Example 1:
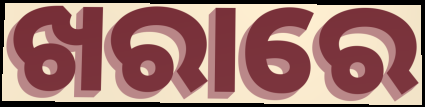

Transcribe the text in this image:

ଖରାରେ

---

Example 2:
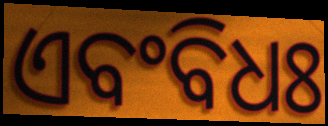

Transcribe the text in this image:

ଏବଂବିଧଃ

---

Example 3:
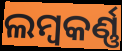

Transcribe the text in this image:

ଲମ୍ୱକର୍ଣ୍ଣ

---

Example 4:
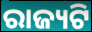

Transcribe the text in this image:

ରାଜ୍ୟଟି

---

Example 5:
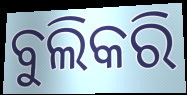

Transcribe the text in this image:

ବୁଲିକରି